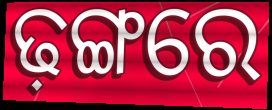
ଢ଼ଙ୍ଗରେ